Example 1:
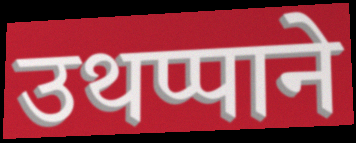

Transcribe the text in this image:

उथप्पाने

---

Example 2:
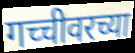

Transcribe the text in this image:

गच्चीवरच्या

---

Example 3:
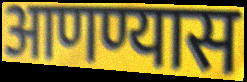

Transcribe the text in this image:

आणण्यास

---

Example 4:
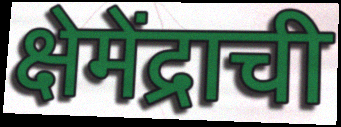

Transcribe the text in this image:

क्षेमेंद्राची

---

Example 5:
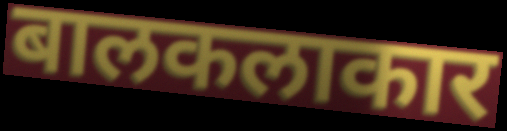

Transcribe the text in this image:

बालकलाकार